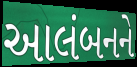
આલંબનને